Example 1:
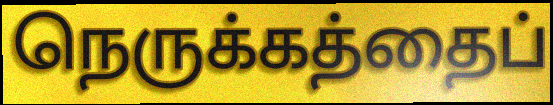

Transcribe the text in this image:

நெருக்கத்தைப்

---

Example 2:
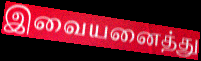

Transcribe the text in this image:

இவையனைத்து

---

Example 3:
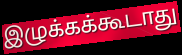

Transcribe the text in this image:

இழுக்கக்கூடாது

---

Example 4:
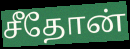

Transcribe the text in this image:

சீதோன்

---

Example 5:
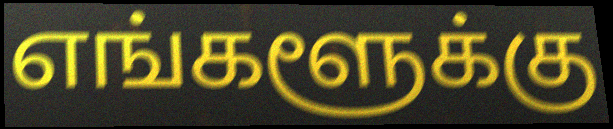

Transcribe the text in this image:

எங்களூக்கு